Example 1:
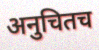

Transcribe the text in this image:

अनुचितच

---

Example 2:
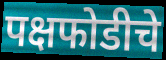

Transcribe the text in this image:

पक्षफोडीचे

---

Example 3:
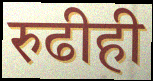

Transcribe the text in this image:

रुढीही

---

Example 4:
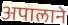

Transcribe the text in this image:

अपालाने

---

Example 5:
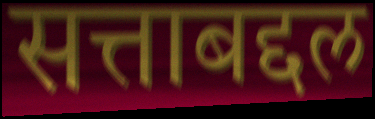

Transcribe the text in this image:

सत्ताबद्दल